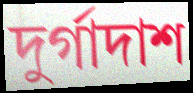
দুর্গাদাশ